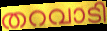
തറവാടി